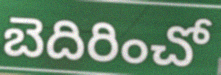
బెదిరించో